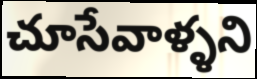
చూసేవాళ్ళని